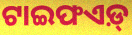
ଟାଇଫଏଡ଼୍